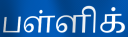
பள்ளிக்